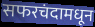
सफरचंदामधून